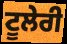
ਟੂਲੇਰੀ